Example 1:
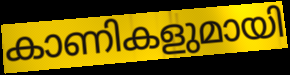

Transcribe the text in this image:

കാണികളുമായി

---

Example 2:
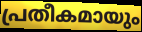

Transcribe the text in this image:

പ്രതീകമായും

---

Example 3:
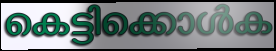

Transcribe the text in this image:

കെട്ടിക്കൊൾക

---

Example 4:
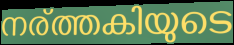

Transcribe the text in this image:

നര്ത്തകിയുടെ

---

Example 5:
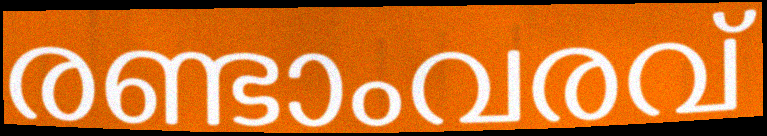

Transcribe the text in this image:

രണ്ടാംവരവ്